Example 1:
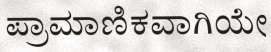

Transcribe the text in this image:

ಪ್ರಾಮಾಣಿಕವಾಗಿಯೇ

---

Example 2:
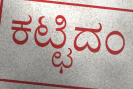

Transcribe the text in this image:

ಕಟ್ಟಿದಂ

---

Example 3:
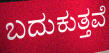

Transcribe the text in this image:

ಬದುಕುತ್ತವೆ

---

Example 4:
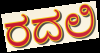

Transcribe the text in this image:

ರದಲಿ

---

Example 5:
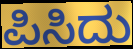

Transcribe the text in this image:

ಪಿಸಿದು